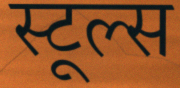
स्टूल्स